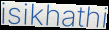
isikhathi